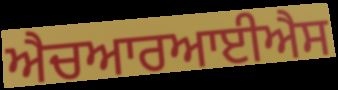
ਐਚਆਰਆਈਐਸ